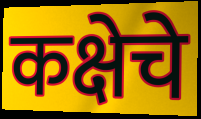
कक्षेचे